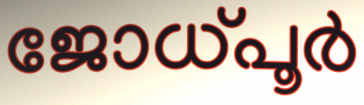
ജോധ്പൂർ